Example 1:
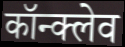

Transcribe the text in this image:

कॉन्क्लेव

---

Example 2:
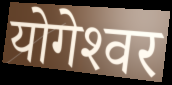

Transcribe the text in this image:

योगेश्‍वर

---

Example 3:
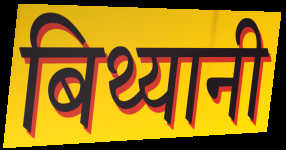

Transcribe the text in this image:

बिथ्यानी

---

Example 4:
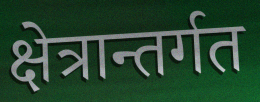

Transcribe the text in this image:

क्षेत्रान्तर्गत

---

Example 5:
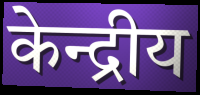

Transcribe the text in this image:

केन्‍द्रीय